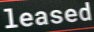
leased